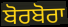
ਬੋਰਬੋਰਾ